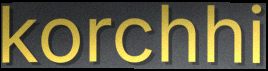
korchhi